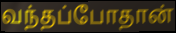
வந்தப்போதான்